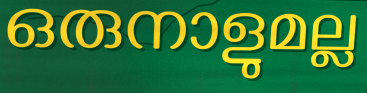
ഒരുനാളുമല്ല